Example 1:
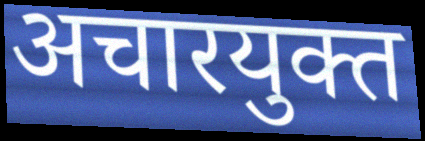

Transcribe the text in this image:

अचारयुक्त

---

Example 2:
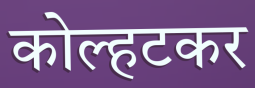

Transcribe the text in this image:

कोल्हटकर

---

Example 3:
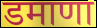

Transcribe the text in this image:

डमाणा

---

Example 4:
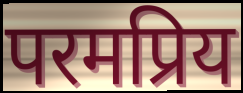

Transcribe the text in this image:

परमप्रिय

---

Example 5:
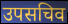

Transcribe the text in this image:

उपसचिव